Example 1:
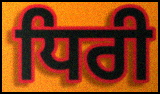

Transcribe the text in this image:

ਧਿਰੀ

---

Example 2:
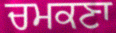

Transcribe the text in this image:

ਚਮਕਣਾ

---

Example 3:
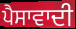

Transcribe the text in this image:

ਪੈਸਾਵਾਦੀ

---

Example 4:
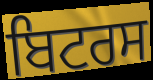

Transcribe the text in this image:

ਬਿਟਰਸ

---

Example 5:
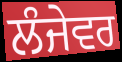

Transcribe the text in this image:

ਲੰਜੇਵਰ